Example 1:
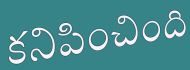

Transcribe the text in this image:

కనిపించింది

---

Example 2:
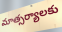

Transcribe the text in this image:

మాత్సర్యాలకు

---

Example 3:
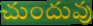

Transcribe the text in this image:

చుందువు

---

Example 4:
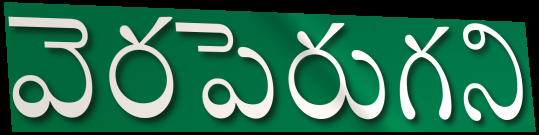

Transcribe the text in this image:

వెరపెరుగని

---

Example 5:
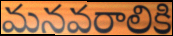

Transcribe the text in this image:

మనవరాలికి